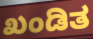
ಖಂಡಿತ